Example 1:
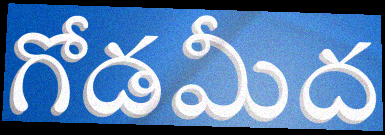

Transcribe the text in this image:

గోడమీద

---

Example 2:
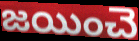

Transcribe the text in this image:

జయించె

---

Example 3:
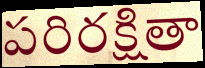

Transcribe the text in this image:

పరిరక్షితా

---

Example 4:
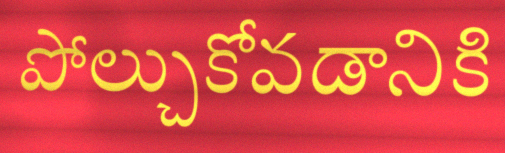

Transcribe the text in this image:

పోల్చుకోవడానికి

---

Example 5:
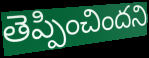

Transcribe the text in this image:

తెప్పించిందని